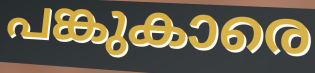
പങ്കുകാരെ